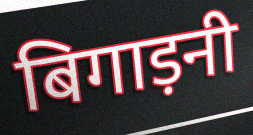
बिगाड़नी